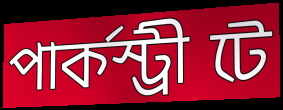
পার্কস্ট্রীটে